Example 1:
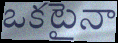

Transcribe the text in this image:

ఒకటైనా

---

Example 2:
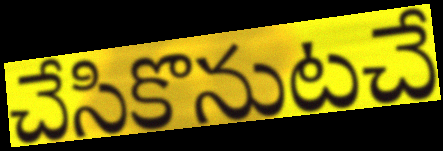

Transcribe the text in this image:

చేసికొనుటచే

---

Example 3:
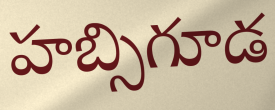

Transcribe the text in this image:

హబ్సిగూడ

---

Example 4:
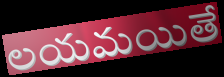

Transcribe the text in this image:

లయమయితే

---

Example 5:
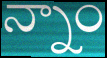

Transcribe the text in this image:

న్నాం